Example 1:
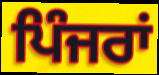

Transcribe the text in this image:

ਪਿੰਜਰਾਂ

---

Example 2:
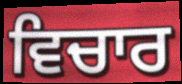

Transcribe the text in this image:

ਵਿਚਾਰ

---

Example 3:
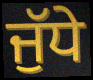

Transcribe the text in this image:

ਜੁੱਧੇ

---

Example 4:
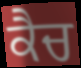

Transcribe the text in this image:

ਕੈਚ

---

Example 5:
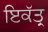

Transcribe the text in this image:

ਇਕੱਤ੍ਰ